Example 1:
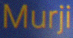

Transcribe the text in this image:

Murji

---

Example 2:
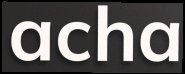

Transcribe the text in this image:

acha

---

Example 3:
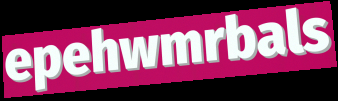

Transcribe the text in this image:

epehwmrbals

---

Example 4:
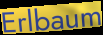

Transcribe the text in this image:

Erlbaum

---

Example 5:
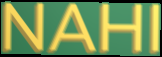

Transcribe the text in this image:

NAHI